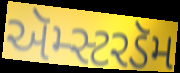
ઍમ્સ્ટરડૅમ